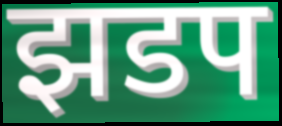
झडप